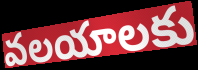
వలయాలకు